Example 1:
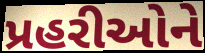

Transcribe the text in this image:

પ્રહરીઓને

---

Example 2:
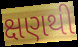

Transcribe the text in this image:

ક્ષણથી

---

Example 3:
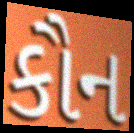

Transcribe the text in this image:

કૌન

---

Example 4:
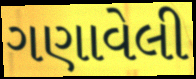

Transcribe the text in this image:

ગણાવેલી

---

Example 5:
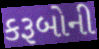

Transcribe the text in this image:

કરૂબોની